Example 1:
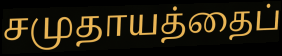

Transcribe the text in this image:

சமுதாயத்தைப்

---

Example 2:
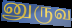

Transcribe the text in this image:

னுருவ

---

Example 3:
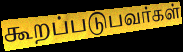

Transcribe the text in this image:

கூறப்படுபவர்கள்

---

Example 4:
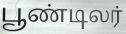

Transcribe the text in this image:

பூண்டிலர்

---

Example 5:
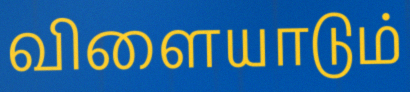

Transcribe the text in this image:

விளையாடும்